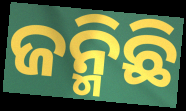
ଜନ୍ମିଛି